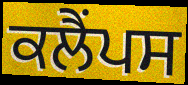
ਕਲੈਂਪਸ